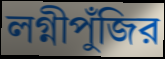
লগ্নীপুঁজির